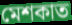
মেশকাত